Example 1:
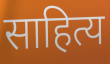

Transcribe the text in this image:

साहित्य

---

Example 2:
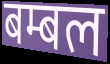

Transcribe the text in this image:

बम्बल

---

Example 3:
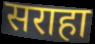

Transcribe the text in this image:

सराहा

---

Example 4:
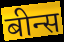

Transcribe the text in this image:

बीन्स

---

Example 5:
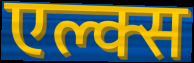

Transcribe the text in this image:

एल्क्स